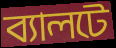
ব্যালটে